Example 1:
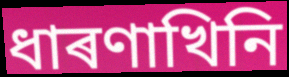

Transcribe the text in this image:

ধাৰণাখিনি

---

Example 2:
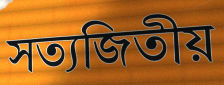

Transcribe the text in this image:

সত্যজিতীয়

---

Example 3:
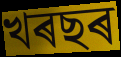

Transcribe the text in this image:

খৰছৰ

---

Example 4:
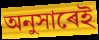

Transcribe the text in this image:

অনুসাৰেই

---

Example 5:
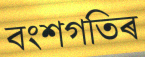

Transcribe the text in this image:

বংশগতিৰ